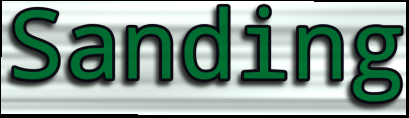
Sanding